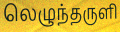
லெழுந்தருளி